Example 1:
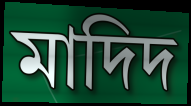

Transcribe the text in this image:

মাদিদ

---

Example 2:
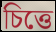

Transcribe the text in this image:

চিত্তে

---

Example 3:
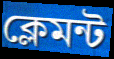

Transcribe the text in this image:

ক্লেমন্ট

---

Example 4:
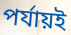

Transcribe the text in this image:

পর্যায়ই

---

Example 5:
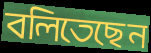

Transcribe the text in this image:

বলিতেছেন